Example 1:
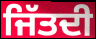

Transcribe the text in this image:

ਜਿੱਤਦੀ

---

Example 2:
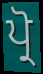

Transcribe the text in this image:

ਪ੍ਰੋ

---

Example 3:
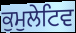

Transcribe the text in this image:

ਕੁਮੁਲੇਟਿਵ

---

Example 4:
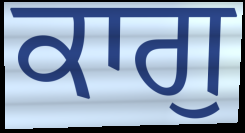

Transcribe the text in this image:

ਕਾਗੁ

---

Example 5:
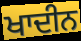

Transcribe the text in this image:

ਖਾਦੀਨ